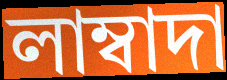
লাম্বাদা